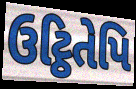
ઉટ્ઠિતેપિ